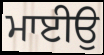
ਮਾਈਉ